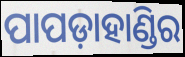
ପାପଡ଼ାହାଣ୍ଡିର